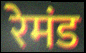
रेमंड